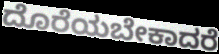
ದೊರೆಯಬೇಕಾದರೆ